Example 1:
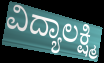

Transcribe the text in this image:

ವಿದ್ಯಾಲಕ್ಷ್ಮಿ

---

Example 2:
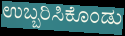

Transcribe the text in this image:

ಉಬ್ಬರಿಸಿಕೊಂಡು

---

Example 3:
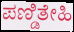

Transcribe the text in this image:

ಪಣ್ಡಿತೇಹಿ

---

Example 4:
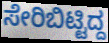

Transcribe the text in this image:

ಸೇರಿಬಿಟ್ಟಿದ್ದ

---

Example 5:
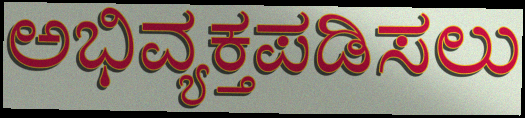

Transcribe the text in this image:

ಅಭಿವ್ಯಕ್ತಪಡಿಸಲು